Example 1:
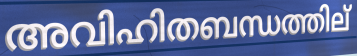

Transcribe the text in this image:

അവിഹിതബന്ധത്തില്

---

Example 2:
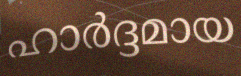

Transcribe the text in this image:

ഹാർദ്ദമായ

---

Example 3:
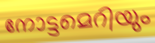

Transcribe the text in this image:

നോട്ടമെറിയും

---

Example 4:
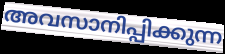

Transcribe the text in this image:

അവസാനിപ്പിക്കുന്ന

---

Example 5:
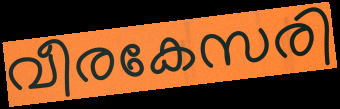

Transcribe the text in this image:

വീരകേസരി